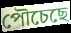
পৌচেছে